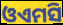
ଓଏମସି